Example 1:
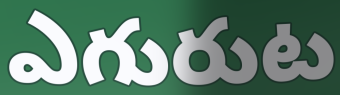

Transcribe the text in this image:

ఎగురుట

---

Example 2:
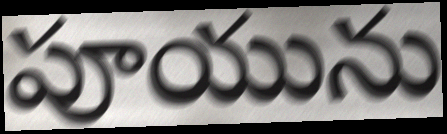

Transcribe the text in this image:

పూయును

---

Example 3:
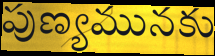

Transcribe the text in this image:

పుణ్యమునకు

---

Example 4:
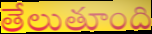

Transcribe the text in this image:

తేలుతూంది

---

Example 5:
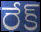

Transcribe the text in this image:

రేక్